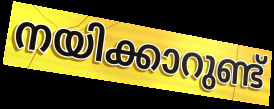
നയിക്കാറുണ്ട്